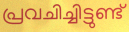
പ്രവചിച്ചിട്ടുണ്ട്